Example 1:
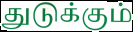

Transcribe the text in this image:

துடுக்கும்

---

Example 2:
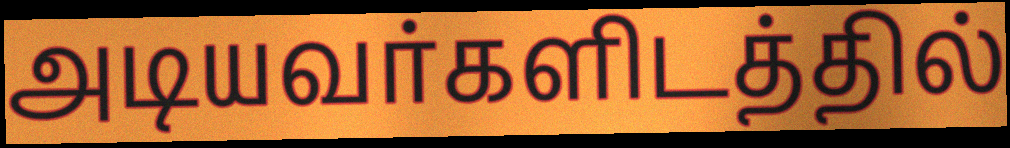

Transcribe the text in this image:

அடியவர்களிடத்தில்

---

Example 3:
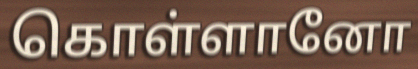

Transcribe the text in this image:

கொள்ளானோ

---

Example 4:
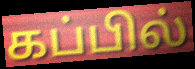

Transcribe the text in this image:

கப்பில்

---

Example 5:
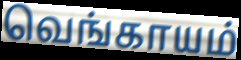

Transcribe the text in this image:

வெங்காயம்